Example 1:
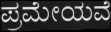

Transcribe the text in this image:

ಪ್ರಮೇಯವೆ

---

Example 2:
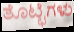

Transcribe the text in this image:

ತೊಟ್ಟೆಗಳು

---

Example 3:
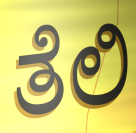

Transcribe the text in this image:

ತೆಲಿ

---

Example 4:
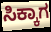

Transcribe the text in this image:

ಸಿಕ್ಕಾಗ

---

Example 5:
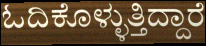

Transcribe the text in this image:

ಓದಿಕೊಳ್ಳುತ್ತಿದ್ದಾರೆ